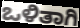
ಒಳಿತಾಗಿ